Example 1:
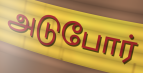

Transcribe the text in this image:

அடுபோர்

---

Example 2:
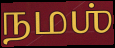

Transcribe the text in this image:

நமஶ்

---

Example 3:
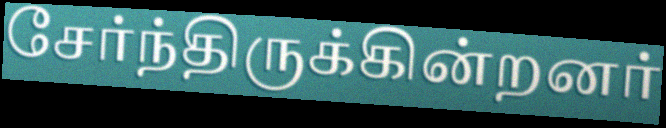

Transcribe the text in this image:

சேர்ந்திருக்கின்றனர்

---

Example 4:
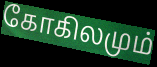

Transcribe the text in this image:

கோகிலமும்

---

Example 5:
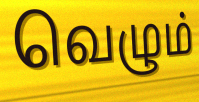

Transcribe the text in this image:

வெழும்